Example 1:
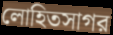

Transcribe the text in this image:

লোহিতসাগর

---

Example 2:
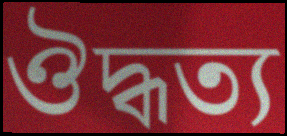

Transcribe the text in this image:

ঔদ্ধত্য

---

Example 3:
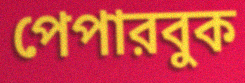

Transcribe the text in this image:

পেপারবুক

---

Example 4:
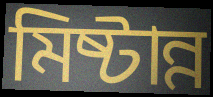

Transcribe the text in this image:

মিষ্টান্ন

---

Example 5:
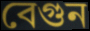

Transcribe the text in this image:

বেগুন